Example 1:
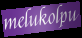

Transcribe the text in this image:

melukolpu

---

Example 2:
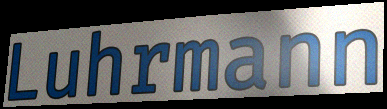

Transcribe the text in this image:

Luhrmann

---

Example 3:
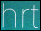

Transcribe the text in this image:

hrt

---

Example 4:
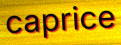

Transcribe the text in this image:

caprice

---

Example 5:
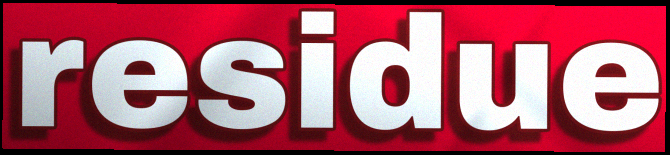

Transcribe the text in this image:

residue